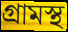
গ্রামস্থ